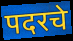
पदरचे